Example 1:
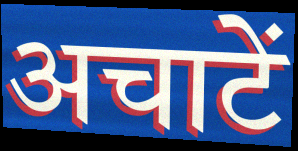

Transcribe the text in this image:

अचाटें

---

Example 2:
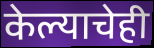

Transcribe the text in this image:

केल्याचेही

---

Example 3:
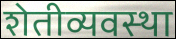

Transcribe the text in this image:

शेतीव्यवस्था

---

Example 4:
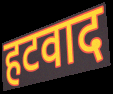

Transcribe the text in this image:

हटवाद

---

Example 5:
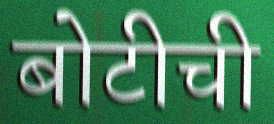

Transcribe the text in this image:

बोटीची